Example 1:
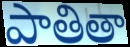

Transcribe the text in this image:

పాతితా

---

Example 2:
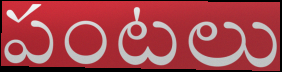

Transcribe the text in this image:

పంటలు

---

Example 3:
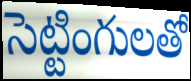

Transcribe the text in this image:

సెట్టింగులతో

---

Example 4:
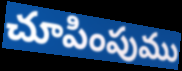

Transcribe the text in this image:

చూపింపుము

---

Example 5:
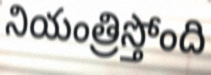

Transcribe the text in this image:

నియంత్రిస్తోంది